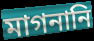
মাগনানি